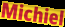
Michiel